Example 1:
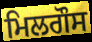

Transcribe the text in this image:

ਮਿਲਗੌਸ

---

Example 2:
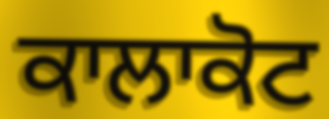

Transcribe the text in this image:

ਕਾਲਾਕੋਟ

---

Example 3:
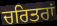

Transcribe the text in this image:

ਚਰਿਤਰਾਂ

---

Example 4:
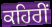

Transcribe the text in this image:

ਕਹਿਰੀਂ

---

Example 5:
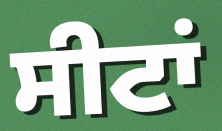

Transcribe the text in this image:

ਸੀਟਾਂ